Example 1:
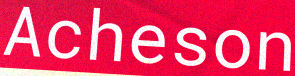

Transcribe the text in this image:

Acheson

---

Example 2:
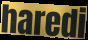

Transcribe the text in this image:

haredi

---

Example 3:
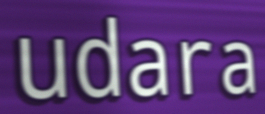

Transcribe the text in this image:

udara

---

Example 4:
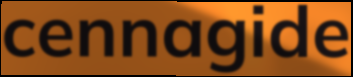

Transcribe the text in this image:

cennagide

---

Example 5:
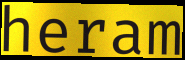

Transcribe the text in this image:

heram